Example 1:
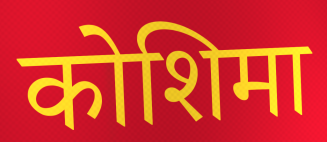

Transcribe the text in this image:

कोशिमा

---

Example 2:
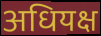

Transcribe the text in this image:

अधियक्ष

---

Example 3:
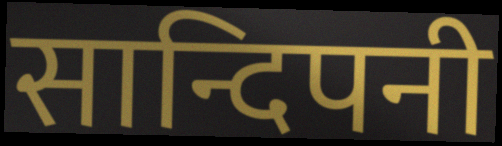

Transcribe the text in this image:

सान्दिपनी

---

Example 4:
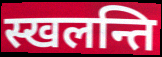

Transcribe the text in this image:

स्खलन्ति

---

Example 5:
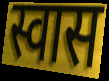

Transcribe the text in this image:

स्वास